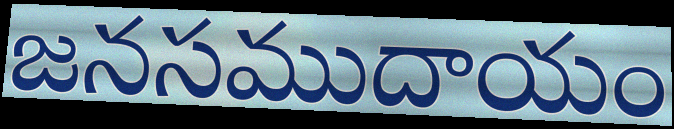
జనసముదాయం